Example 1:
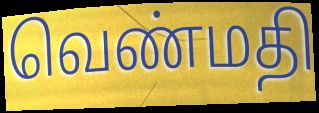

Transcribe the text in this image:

வெண்மதி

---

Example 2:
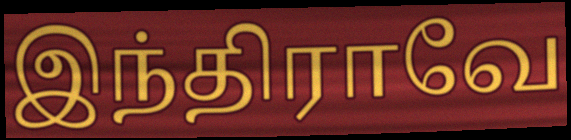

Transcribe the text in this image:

இந்திராவே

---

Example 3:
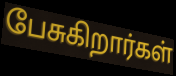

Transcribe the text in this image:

பேசுகிறார்கள்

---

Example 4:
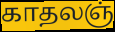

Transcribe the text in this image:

காதலஞ்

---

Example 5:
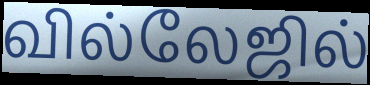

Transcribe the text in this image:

வில்லேஜில்